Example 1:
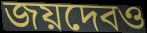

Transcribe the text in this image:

জয়দেবও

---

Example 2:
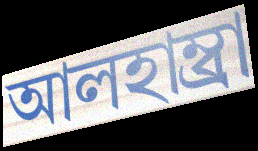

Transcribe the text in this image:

আলহাম্ব্রা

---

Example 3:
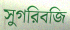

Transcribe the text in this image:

সুগরিবজি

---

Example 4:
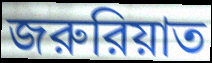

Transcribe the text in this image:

জরুরিয়াত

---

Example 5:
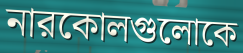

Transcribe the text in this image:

নারকোলগুলোকে